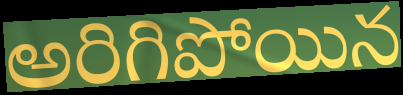
అరిగిపోయిన